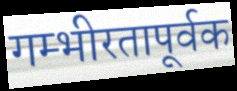
गम्भीरतापूर्वक